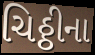
ચિઠ્ઠીના